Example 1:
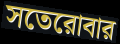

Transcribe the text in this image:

সতেরোবার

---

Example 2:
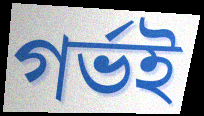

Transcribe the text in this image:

গর্ভই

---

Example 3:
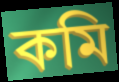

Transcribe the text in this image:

কমি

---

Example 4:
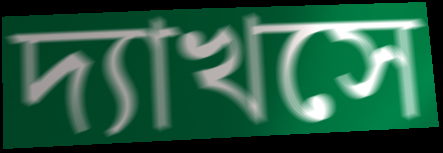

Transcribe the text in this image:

দ্যাখসে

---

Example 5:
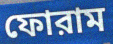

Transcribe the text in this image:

ফোরাম